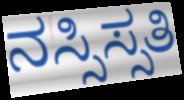
ನಸ್ಸಿಸ್ಸತಿ